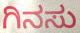
ಗಿನಸು